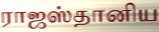
ராஜஸ்தானிய